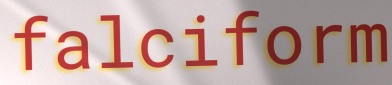
falciform